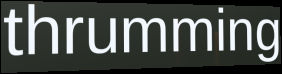
thrumming